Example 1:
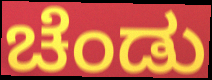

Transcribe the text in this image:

ಚೆಂಡು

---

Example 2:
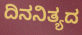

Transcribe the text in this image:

ದಿನನಿತ್ಯದ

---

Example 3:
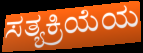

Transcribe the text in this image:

ಸತ್ಯಕ್ರಿಯೆಯ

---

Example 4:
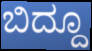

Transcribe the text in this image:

ಬಿದ್ದೂ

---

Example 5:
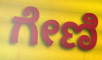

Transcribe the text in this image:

ಗೇಣಿ